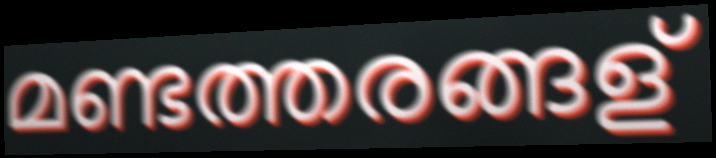
മണ്ടത്തരങ്ങള്